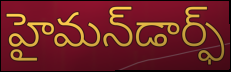
హైమన్‌డార్ఫ్